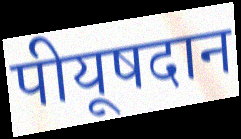
पीयूषदान